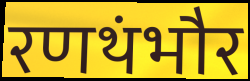
रणथंभौर